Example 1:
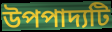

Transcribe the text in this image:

উপপাদ্যটি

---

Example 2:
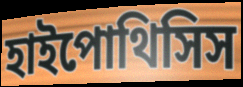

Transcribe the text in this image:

হাইপোথিসিস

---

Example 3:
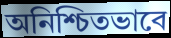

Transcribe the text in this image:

অনিশ্চিতভাবে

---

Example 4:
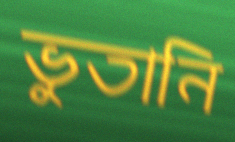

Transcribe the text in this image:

ভুতানি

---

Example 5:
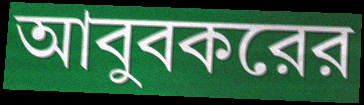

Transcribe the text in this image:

আবুবকরের